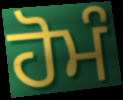
ਹੋਮੰ